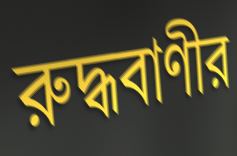
রুদ্ধবাণীর